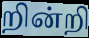
றின்றி